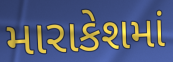
મારાકેશમાં